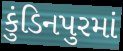
કુંડિનપુરમાં